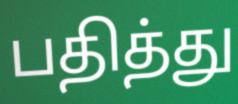
பதித்து